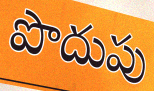
పొదుపు